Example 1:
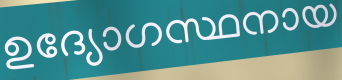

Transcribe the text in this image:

ഉദ്യോഗസ്ഥനായ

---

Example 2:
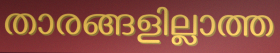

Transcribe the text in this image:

താരങ്ങളില്ലാത്ത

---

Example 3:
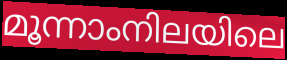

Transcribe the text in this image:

മൂന്നാംനിലയിലെ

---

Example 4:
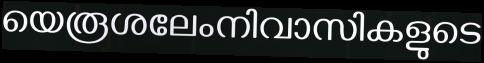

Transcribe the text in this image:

യെരൂശലേംനിവാസികളുടെ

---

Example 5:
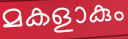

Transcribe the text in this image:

മകളാകും